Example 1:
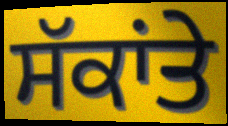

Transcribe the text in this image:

ਸੱਕਾਂਤੇ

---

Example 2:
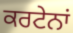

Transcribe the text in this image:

ਕਰਟੇਨਾਂ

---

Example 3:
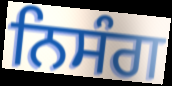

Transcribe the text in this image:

ਨਿਸੰਗ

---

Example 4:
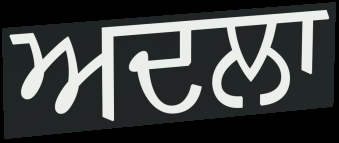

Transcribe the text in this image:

ਅਦਲਾ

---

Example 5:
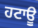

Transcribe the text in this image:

ਹਟਾਊ